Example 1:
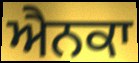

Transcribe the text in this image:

ਐਨਕਾ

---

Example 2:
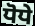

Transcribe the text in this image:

ਧੋਧੇ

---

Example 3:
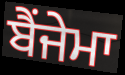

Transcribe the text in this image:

ਬੈਂਜੇਮਾ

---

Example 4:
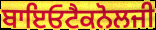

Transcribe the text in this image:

ਬਾਇਓਟੈਕਨੋਲਜੀ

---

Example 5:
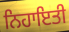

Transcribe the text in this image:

ਨਿਹਾਇਤੀ